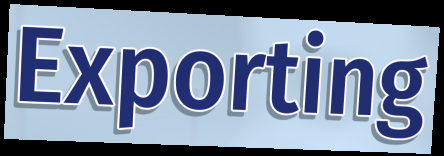
Exporting